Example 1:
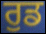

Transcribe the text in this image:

ਰੁਡ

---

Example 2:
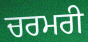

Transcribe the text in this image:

ਚਰਮਰੀ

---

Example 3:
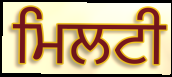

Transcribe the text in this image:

ਮਿਲਟੀ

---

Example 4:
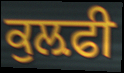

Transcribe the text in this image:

ਕੁਲ਼ਫੀ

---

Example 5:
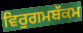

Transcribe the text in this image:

ਵਿਰੁਗਮਬੱਕਮ